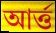
আৰ্ত্ত